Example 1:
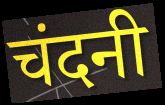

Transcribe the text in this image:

चंदनी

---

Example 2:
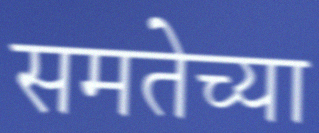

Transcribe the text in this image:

समतेच्या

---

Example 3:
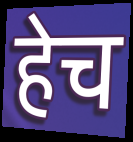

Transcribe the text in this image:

हेच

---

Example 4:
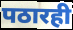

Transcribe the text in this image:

पठारही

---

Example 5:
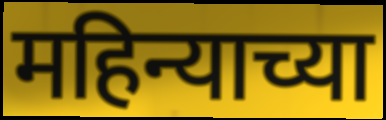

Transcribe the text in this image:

महिन्याच्या